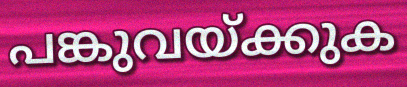
പങ്കുവയ്ക്കുക